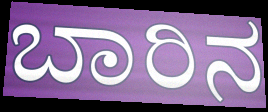
ಬಾರಿನ